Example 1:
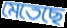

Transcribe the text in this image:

মেতেছে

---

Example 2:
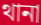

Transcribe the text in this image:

থানা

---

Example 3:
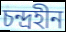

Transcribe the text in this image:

চন্দ্রহীন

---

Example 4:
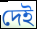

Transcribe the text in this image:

দেই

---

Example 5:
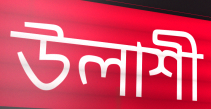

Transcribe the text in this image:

উলাশী